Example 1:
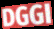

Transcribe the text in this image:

DGGI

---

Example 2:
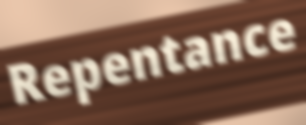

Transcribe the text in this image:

Repentance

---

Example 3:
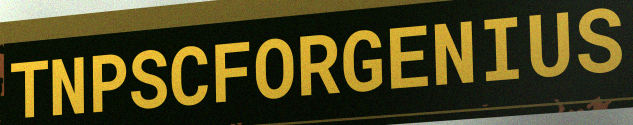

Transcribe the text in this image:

TNPSCFORGENIUS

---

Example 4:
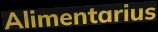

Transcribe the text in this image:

Alimentarius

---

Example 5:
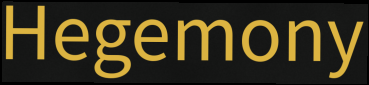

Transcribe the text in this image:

Hegemony